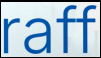
raff